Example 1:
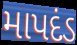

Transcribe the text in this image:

માપદંડ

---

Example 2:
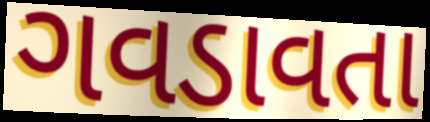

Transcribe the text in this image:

ગવડાવતા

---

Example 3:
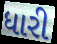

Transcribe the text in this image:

ધારી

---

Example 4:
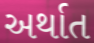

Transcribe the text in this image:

અર્થાત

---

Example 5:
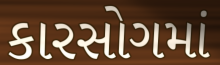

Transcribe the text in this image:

કારસોગમાં